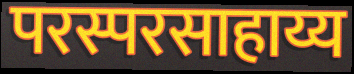
परस्परसाहाय्य